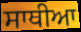
ਸਾਥੀਆ